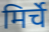
मिर्चे